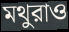
মথুরাও